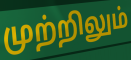
முற்றிலும்